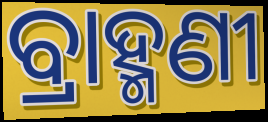
ବ୍ରାହ୍ମଣୀ